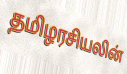
தமிழரசியலின்